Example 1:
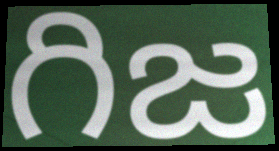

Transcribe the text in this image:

గిజ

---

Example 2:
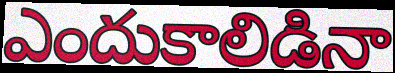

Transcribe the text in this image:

ఎందుకాలిడినా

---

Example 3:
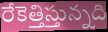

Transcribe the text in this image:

రేకెత్తిస్తున్నది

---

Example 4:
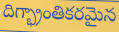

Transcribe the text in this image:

దిగ్భ్రాంతికరమైన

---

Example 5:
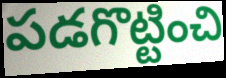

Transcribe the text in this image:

పడగొట్టించి